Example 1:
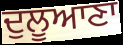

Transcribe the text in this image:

ਦੁਲੂਆਣਾ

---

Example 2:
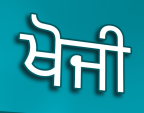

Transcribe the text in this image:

ਖੋਜੀ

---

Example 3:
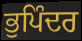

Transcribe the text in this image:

ਭੁਪਿੰਦਰ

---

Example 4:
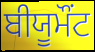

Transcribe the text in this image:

ਬੀਯੂਮੌਂਟ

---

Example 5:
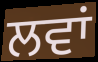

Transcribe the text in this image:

ਲਵਾਂ